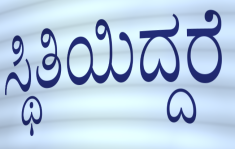
ಸ್ಥಿತಿಯಿದ್ದರೆ